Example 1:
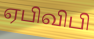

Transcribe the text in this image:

ஏபிவிபி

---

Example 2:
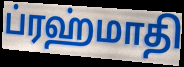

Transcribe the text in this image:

ப்ரஹ்மாதி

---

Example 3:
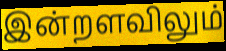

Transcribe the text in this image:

இன்றளவிலும்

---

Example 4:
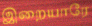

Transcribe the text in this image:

இறையாரே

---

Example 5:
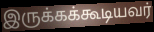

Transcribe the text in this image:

இருக்கக்கூடியவர்